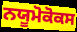
ਨਯੂਮੋਕੋਕਸ